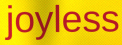
joyless